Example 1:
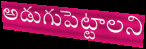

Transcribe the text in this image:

అడుగుపెట్టాలని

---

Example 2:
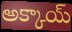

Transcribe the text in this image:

అక్కాయ్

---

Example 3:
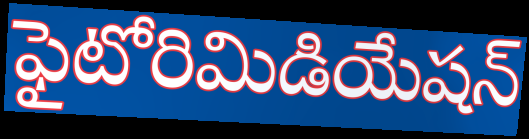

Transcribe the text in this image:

ఫైటోరిమిడియేషన్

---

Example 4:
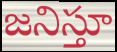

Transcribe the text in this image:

జనిస్తూ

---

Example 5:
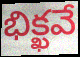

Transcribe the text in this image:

భిక్ఖవే